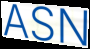
ASN